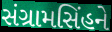
સંગ્રામસિંહને